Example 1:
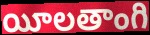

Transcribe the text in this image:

యీలతాంగి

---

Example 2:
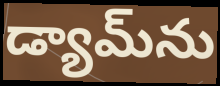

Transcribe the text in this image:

డ్యామ్‌ను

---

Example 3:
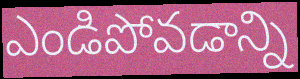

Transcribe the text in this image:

ఎండిపోవడాన్ని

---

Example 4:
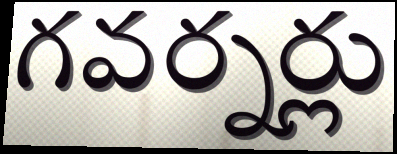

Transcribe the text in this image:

గవర్నర్లు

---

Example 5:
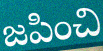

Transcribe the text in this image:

జపించి